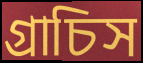
গ্রাচিস